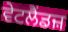
ਵੇਟਲੈਂਡਜ਼